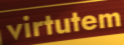
virtutem